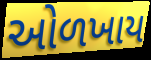
ઓળખાય